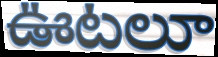
ఊటలూ